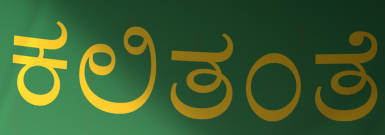
ಕಲಿತಂತೆ